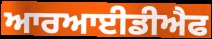
ਆਰਆਈਡੀਐਫ